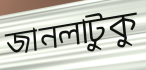
জানলাটুকু